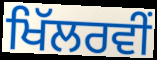
ਖਿੱਲਰਵੀਂ